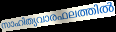
സാഹിത്യവാരഫലത്തിൽ